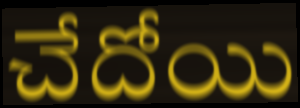
చేదోయి